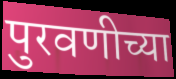
पुरवणीच्या